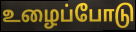
உழைப்போடு